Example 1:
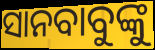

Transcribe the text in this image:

ସାନବାବୁଙ୍କୁ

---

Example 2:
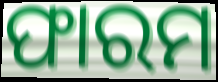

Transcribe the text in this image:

ଫାରମ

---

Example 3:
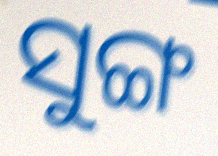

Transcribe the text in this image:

ସୁଙ୍ଗ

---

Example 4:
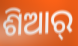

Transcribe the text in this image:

ଶିଆର୍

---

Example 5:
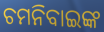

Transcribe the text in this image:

ଚମନିବାଇଙ୍କ